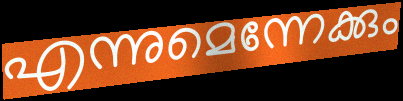
എന്നുമെന്നേക്കും